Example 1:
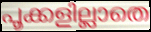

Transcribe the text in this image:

പൂക്കളില്ലാതെ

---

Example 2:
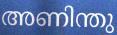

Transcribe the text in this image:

അണിന്തു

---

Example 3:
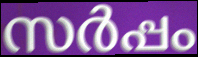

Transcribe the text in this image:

സർപ്പം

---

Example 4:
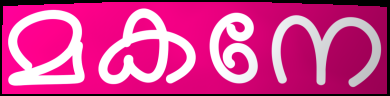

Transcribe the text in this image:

മകനേ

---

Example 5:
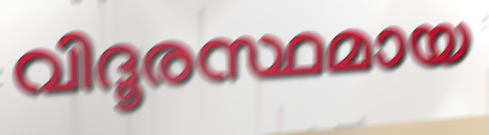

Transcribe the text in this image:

വിദൂരസ്ഥമായ